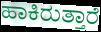
ಹಾಕಿರುತ್ತಾರೆ